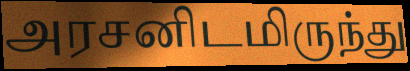
அரசனிடமிருந்து